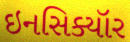
ઇનસિક્યૉર